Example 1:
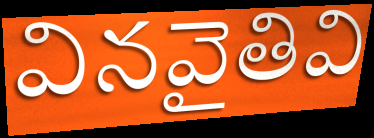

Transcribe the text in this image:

వినవైతివి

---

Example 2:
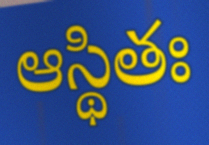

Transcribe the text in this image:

ఆస్థితః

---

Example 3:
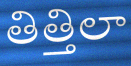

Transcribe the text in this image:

తిత్తిలా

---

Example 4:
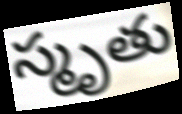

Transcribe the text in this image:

స్మృతు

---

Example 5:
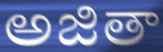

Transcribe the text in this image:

అజితా